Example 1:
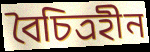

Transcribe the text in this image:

বৈচিত্রহীন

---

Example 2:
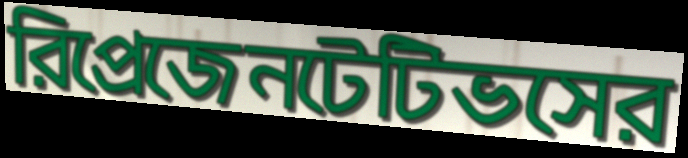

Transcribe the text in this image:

রিপ্রেজেনটেটিভসের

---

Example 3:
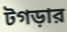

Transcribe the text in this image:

টগড়ার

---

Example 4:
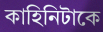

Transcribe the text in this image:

কাহিনিটাকে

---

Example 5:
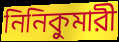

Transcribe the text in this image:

নিনিকুমারী